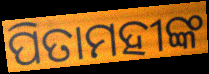
ପିତାମହୀଙ୍କ